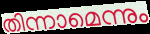
തിന്നാമെന്നും